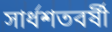
সার্ধশতবর্ষী